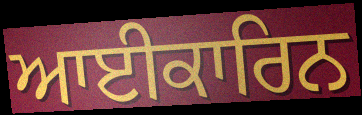
ਆਈਕਾਰਿਨ